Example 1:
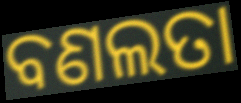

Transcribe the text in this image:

ବଣଲତା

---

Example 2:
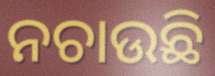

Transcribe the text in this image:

ନଚାଉଛି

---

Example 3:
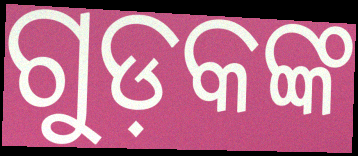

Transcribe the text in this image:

ଗୁଡ଼କଙ୍କ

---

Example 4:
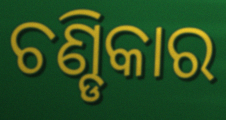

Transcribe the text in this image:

ଚଣ୍ଡିକାର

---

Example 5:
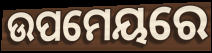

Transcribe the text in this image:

ଉପମେୟରେ